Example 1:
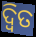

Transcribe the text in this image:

ଦ୍ବିତ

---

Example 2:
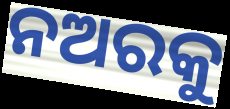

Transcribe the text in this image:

ନଅରକୁ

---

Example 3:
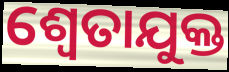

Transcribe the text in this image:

ଶ୍ଵେତାଯୁକ୍ତ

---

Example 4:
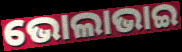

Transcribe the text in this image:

ଭୋଲାଭାଇ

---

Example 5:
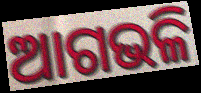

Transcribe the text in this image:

ଆଗଭଳି